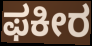
ಫಕೀರ